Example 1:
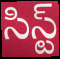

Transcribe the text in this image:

సిస్ట్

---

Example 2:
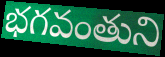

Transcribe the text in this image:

భగవంతుని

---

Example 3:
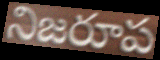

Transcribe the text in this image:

నిజరూప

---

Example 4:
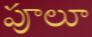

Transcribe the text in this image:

పూలూ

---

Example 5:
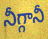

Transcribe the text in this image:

నీగ్గానీ